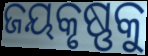
ଜୟକୃଷ୍ଣକୁ